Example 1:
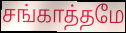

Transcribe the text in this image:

சங்காத்தமே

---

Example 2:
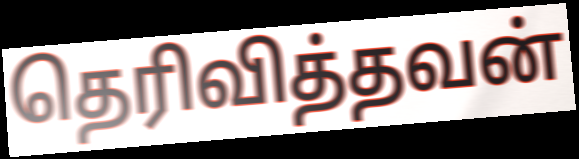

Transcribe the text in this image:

தெரிவித்தவன்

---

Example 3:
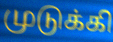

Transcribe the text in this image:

முடுக்கி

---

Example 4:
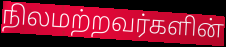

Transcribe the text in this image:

நிலமற்றவர்களின்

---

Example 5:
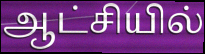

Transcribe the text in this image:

ஆட்சியில்